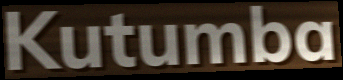
Kutumba